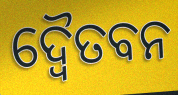
ଦ୍ବୈତବନ